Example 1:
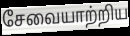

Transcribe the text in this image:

சேவையாற்றிய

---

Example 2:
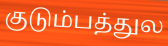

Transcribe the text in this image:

குடும்பத்துல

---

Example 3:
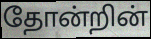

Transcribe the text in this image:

தோன்றின்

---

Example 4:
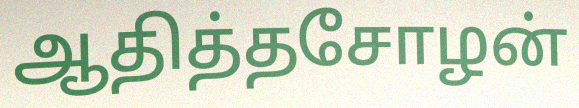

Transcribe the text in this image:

ஆதித்தசோழன்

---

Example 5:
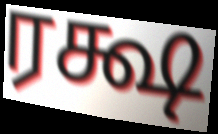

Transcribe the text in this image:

ரக்ஷ